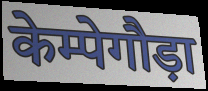
केम्पेगौड़ा